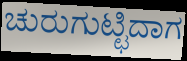
ಚುರುಗುಟ್ಟಿದಾಗ